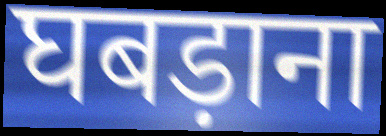
घबड़ाना